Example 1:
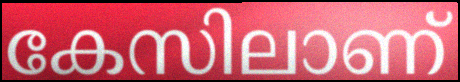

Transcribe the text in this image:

കേസിലാണ്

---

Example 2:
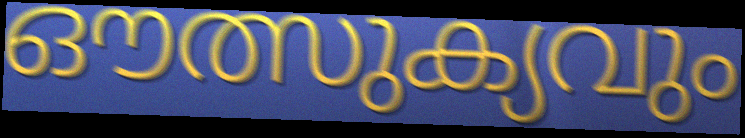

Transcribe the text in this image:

ഔത്സുക്യവും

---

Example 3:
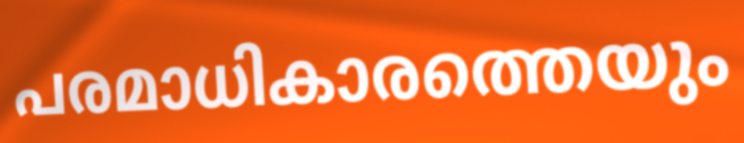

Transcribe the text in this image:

പരമാധികാരത്തെയും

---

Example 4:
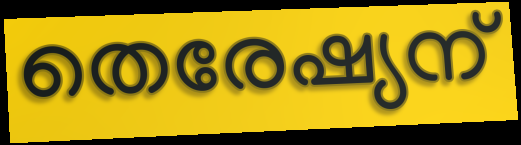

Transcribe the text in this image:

തെരേഷ്യന്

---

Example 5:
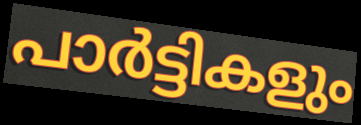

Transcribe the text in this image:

പാർട്ടികളും